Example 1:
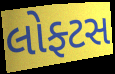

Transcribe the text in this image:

લોફ્ટસ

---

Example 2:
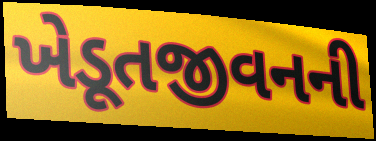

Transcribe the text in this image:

ખેડૂતજીવનની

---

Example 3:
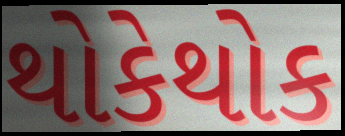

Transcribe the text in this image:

થોકેથોક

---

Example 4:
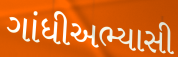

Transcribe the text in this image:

ગાંધીઅભ્યાસી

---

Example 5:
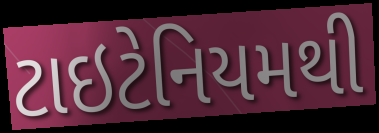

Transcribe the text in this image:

ટાઇટેનિયમથી